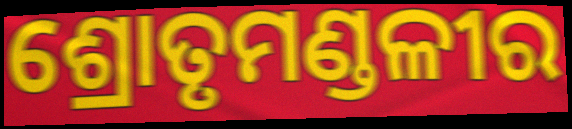
ଶ୍ରୋତୃମଣ୍ଡଳୀର